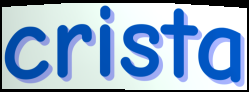
crista